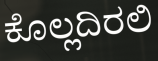
ಕೊಲ್ಲದಿರಲಿ